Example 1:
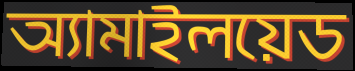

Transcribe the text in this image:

অ্যামাইলয়েড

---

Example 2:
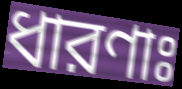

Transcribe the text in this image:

ধারণাঃ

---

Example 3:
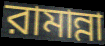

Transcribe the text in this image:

রামান্না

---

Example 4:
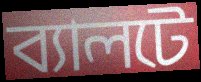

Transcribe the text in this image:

ব্যালটে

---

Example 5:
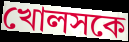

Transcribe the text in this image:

খোলসকে